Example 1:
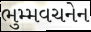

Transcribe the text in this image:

ભુમ્મવચનેન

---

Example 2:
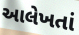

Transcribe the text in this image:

આલેખતાં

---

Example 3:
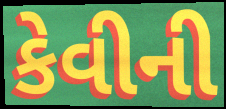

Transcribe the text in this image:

કેવીની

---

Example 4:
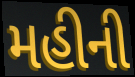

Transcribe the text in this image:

મહીની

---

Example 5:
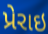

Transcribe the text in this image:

પ્રેરાઇ